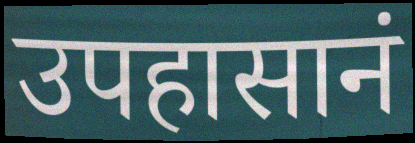
उपहासानं